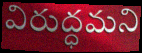
విరుద్ధమని